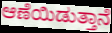
ಆಣೆಯಿಡುತ್ತಾನೆ